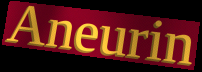
Aneurin